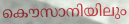
കൌസാനിയിലും